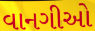
વાનગીઓ